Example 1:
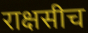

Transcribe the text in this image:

राक्षसीच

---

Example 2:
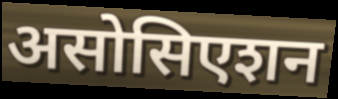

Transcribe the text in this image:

असोसिएशन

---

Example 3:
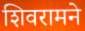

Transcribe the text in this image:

शिवरामने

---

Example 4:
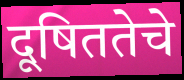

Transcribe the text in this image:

दूषिततेचे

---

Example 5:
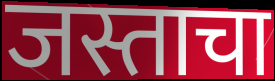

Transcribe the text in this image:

जस्ताचा